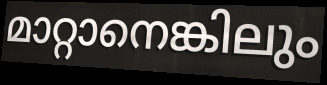
മാറ്റാനെങ്കിലും